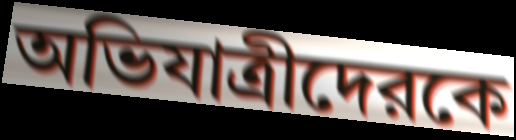
অভিযাত্রীদেরকে